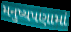
મનુષ્યપણામાં